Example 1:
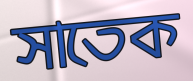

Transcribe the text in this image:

সাতেক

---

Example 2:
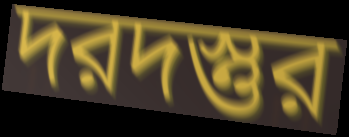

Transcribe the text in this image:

দরদস্তুর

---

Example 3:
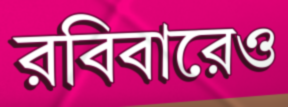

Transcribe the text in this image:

রবিবারেও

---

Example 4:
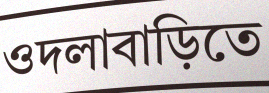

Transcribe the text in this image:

ওদলাবাড়িতে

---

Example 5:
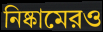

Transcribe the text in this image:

নিষ্কামেরও